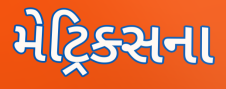
મેટ્રિક્સના